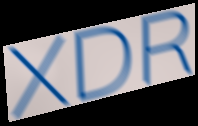
XDR